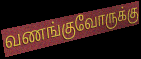
வணங்குவோருக்கு